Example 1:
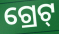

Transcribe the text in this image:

ଗ୍ରେଟ୍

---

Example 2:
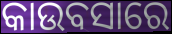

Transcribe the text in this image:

କାଉବସାରେ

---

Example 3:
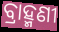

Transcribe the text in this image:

ବ୍ରାହ୍ମଣୀ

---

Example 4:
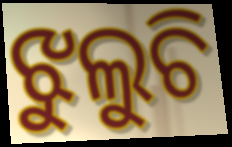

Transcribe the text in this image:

ଝୁଲୁଚି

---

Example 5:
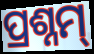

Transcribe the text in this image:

ପ୍ରଶ୍ନମ୍